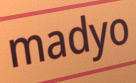
madyo